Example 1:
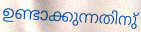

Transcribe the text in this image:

ഉണ്ടാക്കുന്നതിനു്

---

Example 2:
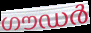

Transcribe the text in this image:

ഗൗഡർ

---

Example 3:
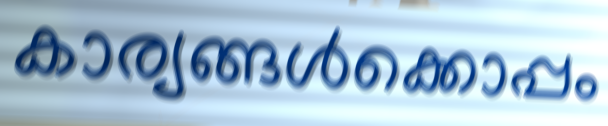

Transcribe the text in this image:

കാര്യങ്ങൾക്കൊപ്പം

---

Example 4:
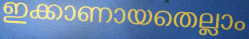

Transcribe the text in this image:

ഇക്കാണായതെല്ലാം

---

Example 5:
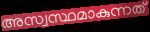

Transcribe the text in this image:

അസ്വസ്ഥമാകുന്നത്